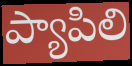
ప్యాపిలి